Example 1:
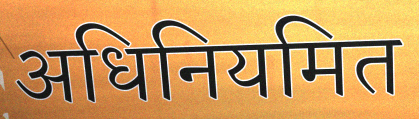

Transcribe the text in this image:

अधिनियमित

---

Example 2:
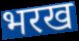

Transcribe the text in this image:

भरख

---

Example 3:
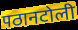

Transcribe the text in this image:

पठानटोली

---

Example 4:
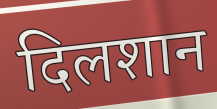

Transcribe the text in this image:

दिलशान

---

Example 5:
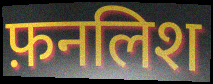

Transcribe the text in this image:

फ़नलिश